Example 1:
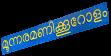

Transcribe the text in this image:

മൂന്നരമണിക്കൂറോളം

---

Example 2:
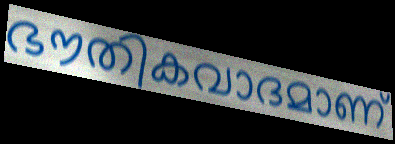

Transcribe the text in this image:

ഭൗതികവാദമാണ്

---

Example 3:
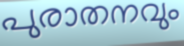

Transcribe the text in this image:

പുരാതനവും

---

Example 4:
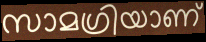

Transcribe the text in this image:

സാമഗ്രിയാണ്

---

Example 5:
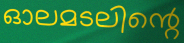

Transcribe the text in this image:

ഓലമടലിന്റെ